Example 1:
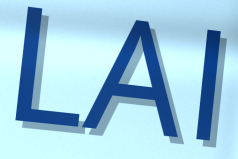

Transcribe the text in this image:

LAI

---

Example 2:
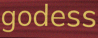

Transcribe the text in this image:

godess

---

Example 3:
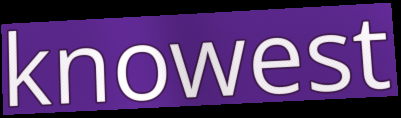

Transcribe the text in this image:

knowest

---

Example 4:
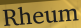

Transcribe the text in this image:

Rheum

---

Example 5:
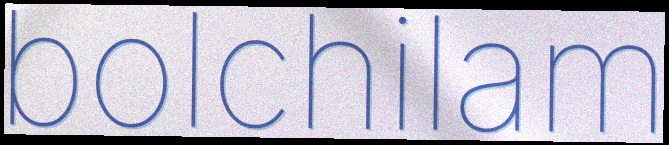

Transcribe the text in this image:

bolchilam